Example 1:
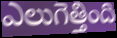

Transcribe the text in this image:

ఎలుగెత్తింది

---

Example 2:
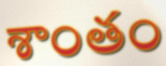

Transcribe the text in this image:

శాంతం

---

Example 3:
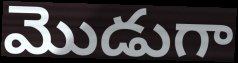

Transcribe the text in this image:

మొడుగా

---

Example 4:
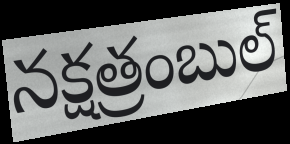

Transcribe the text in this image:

నక్షత్రంబుల్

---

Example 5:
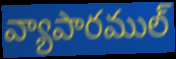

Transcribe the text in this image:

వ్యాపారముల్